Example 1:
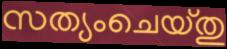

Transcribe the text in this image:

സത്യംചെയ്തു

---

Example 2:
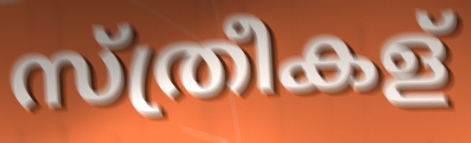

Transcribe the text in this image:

സ്ത്രീകള്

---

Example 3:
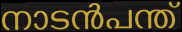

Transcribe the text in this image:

നാടൻപന്ത്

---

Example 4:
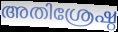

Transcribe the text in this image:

അതിശ്രേഷ്ഠ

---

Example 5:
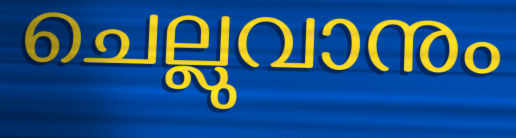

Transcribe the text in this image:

ചെല്ലുവാനും